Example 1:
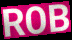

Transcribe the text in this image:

ROB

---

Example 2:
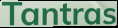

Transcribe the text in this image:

Tantras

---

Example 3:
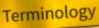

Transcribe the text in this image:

Terminology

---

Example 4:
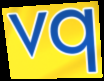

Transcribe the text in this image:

vq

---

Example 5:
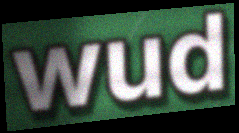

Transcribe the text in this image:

wud